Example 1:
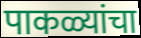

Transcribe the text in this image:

पाकळ्यांचा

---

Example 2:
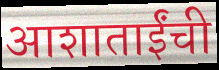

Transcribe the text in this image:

आशाताईंची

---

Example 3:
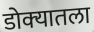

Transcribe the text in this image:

डोक्‍यातला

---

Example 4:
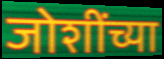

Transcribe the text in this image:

जोशींच्या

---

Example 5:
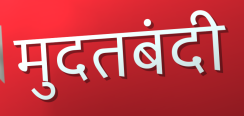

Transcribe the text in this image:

मुदतबंदी